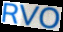
RVO